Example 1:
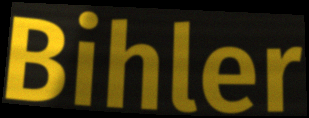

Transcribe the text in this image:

Bihler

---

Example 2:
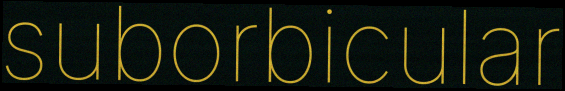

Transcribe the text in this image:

suborbicular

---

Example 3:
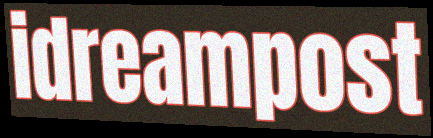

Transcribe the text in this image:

idreampost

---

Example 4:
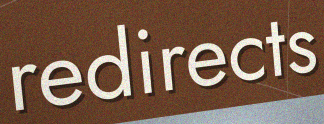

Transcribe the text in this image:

redirects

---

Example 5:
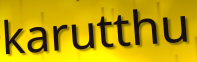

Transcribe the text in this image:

karutthu